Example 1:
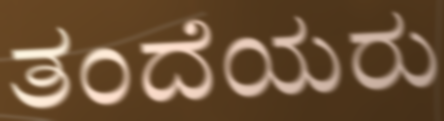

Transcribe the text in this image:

ತಂದೆಯರು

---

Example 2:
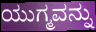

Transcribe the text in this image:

ಯುಗ್ಮವನ್ನು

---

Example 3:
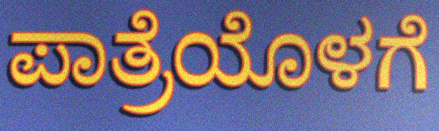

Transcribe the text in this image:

ಪಾತ್ರೆಯೊಳಗೆ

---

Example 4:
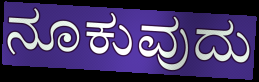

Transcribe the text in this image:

ನೂಕುವುದು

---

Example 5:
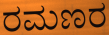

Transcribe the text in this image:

ರಮಣರ